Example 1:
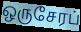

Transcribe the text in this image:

ஒருசேரப்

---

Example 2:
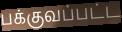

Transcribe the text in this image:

பக்குவப்பட்ட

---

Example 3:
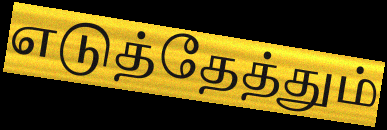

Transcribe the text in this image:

எடுத்தேத்தும்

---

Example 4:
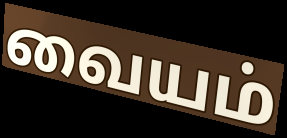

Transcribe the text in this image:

வையம்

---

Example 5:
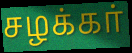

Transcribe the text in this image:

சழக்கர்